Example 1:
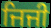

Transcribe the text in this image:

ਜਿਜੀ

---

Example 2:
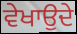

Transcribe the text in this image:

ਵੇਖਾਉਦੇ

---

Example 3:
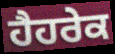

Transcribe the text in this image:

ਹੈਹਰੇਕ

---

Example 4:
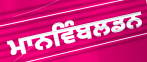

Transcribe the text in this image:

ਮਾਨਵਿੰਬਲਡਨ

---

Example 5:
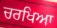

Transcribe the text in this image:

ਚਰਖਿਆ